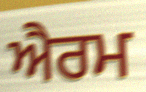
ਐਰਮ